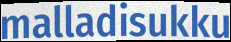
malladisukku